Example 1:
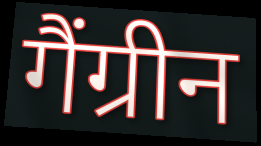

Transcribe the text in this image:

गैंग्रीन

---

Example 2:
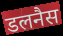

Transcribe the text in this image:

डलनैस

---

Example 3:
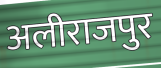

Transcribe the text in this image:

अलीराजपुर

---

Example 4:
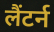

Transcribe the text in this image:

लैंटर्न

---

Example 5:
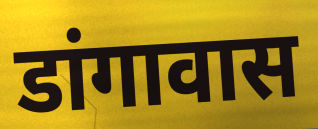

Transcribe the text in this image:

डांगावास